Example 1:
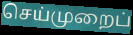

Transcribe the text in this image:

செய்முறைப்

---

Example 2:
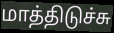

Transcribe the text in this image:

மாத்திடுச்சு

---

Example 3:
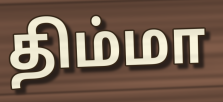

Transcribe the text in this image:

திம்மா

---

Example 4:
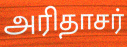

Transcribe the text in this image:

அரிதாசர்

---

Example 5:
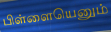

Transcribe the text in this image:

பிள்ளையெனும்